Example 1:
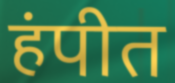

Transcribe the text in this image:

हंपीत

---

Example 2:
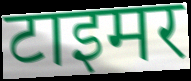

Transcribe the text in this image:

टाइमर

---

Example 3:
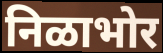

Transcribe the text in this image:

निळाभोर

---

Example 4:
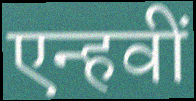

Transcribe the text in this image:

एन्हवीं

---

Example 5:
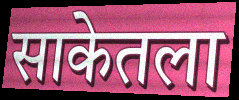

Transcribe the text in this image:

साकेतला